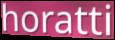
horatti